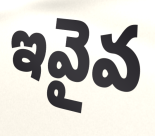
ఇవైవ